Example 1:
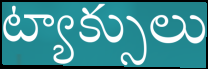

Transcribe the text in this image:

ట్యాక్సులు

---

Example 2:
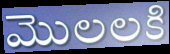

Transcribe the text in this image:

మొలలకి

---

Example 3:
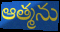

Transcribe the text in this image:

ఆత్మను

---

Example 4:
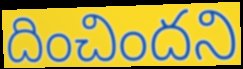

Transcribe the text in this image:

దించిందని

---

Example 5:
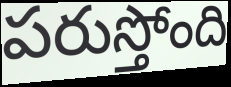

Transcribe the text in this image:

పరుస్తోంది